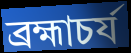
ব্ৰহ্মাচৰ্য